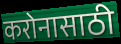
करोनासाठी